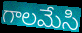
గాలమేసి